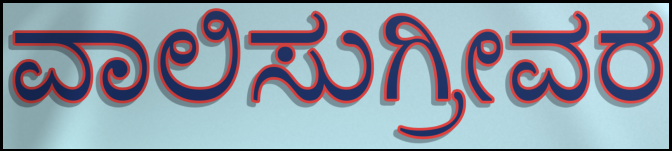
ವಾಲಿಸುಗ್ರೀವರ